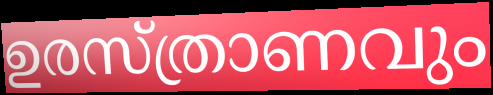
ഉരസ്ത്രാണവും